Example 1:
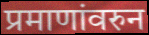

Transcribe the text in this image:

प्रमाणांवरुन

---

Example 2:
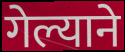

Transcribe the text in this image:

गेल्याने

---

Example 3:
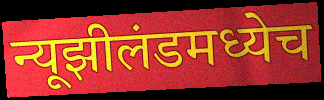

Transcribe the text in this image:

न्यूझीलंडमध्येच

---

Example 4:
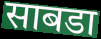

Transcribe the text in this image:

साबडा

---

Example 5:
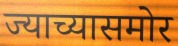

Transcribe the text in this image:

ज्याच्यासमोर